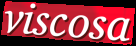
viscosa